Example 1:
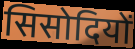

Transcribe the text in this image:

सिसोदियों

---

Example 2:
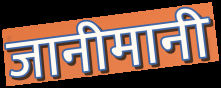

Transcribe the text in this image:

जानीमानी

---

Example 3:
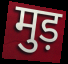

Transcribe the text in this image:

मुड़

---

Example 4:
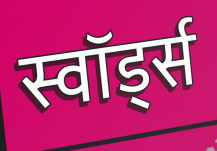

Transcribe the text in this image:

स्वॉर्ड्स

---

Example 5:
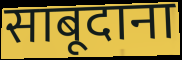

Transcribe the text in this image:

साबूदाना